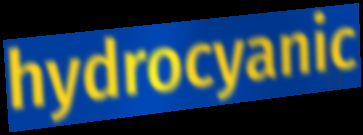
hydrocyanic